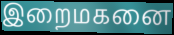
இறைமகனை